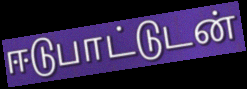
ஈடுபாட்டுடன்